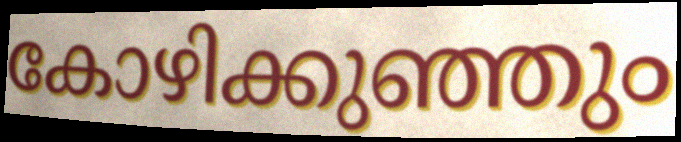
കോഴിക്കുഞ്ഞും